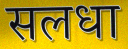
सलधा